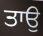
ਤਾਉ